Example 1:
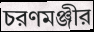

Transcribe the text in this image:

চরণমঞ্জীর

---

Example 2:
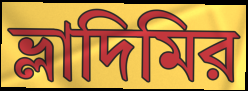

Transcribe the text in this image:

ভ্লাদিমির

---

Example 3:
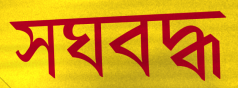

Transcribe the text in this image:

সঘবদ্ধ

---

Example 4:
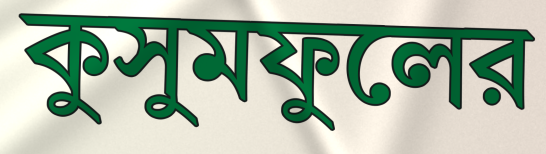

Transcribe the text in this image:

কুসুমফুলের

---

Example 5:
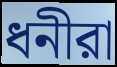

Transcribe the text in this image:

ধনীরা